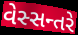
વેસ્સન્તરે